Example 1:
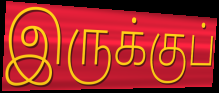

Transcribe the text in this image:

இருக்குப்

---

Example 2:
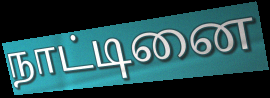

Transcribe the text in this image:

நாட்டினை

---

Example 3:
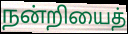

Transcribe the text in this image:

நன்றியைத்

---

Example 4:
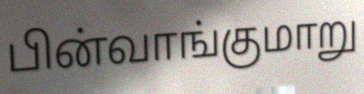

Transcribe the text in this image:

பின்வாங்குமாறு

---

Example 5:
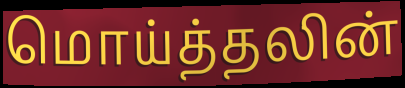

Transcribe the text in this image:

மொய்த்தலின்